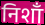
निशाँ